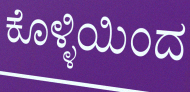
ಕೊಳ್ಳಿಯಿಂದ